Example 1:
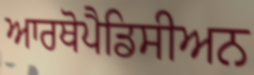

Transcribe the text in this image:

ਆਰਥੋਪੈਡਿਸੀਅਨ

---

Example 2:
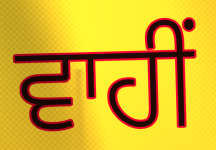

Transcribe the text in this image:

ਵਾਹੀਂ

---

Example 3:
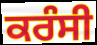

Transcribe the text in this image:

ਕਰੰਸੀ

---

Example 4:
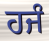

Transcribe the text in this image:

ਹਜੰ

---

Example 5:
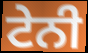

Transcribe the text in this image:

ਟੇਨੀ